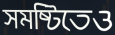
সমষ্টিতেও